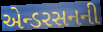
એન્ડરસનની